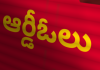
ఆర్డీఓలు